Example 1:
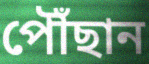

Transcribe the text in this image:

পৌঁছান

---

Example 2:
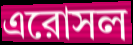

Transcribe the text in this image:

এরোসল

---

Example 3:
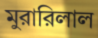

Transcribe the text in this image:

মুরারিলাল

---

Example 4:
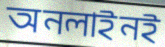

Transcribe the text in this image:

অনলাইনই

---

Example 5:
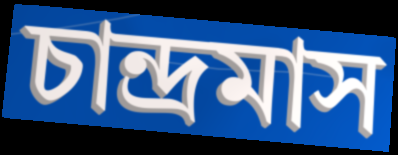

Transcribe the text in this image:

চান্দ্রমাস